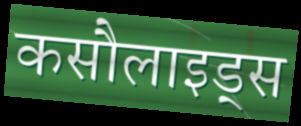
कसौलाइड्स